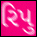
રિપુ